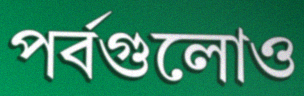
পর্বগুলোও